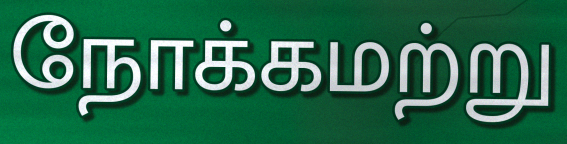
நோக்கமற்று